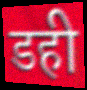
डही